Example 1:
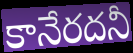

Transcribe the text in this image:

కానేరదనీ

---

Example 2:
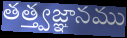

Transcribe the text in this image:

తత్త్వజ్ఞానము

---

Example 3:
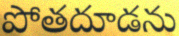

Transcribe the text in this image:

పోతదూడను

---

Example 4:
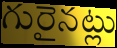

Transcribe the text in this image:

గురైనట్లు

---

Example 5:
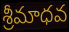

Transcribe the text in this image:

శ్రీమాధవ